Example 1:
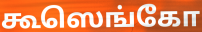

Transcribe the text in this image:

கூஸெங்கோ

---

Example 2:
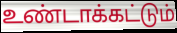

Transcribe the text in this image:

உண்டாக்கட்டும்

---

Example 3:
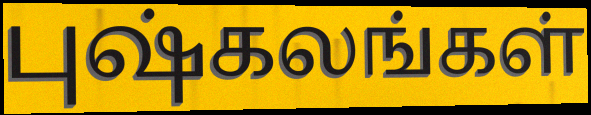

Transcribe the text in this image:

புஷ்கலங்கள்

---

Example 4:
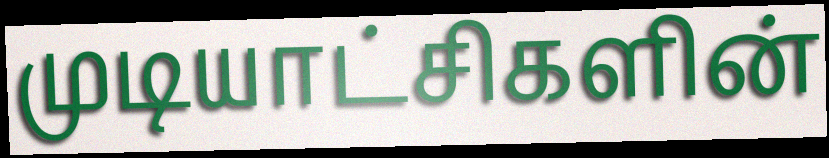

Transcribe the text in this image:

முடியாட்சிகளின்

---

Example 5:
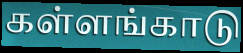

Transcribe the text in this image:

கள்ளங்காடு